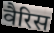
वैरिस